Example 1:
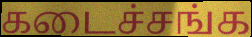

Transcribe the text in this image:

கடைச்சங்க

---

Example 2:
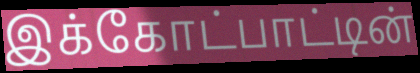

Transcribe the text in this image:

இக்கோட்பாட்டின்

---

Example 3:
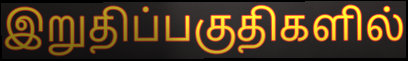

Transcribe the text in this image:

இறுதிப்பகுதிகளில்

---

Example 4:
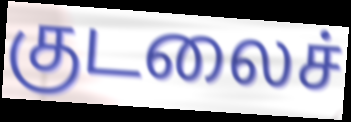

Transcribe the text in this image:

குடலைச்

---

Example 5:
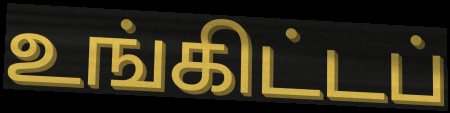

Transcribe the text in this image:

உங்கிட்டப்